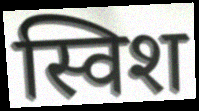
स्विश